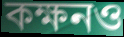
কক্ষনও